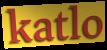
katlo